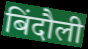
बिंदौली